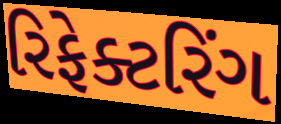
રિફેક્ટરિંગ